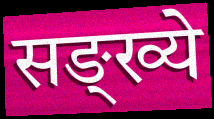
सङ्ख्ये